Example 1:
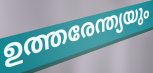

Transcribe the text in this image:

ഉത്തരേന്ത്യയും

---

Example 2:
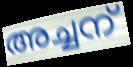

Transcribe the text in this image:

അച്ചന്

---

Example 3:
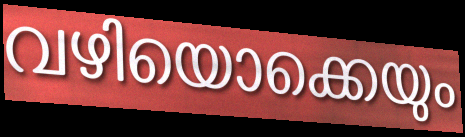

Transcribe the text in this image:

വഴിയൊക്കെയും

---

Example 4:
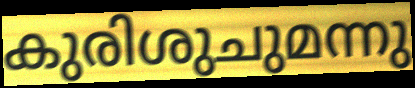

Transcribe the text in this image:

കുരിശുചുമന്നു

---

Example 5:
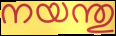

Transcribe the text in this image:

നയന്തു